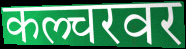
कल्चरवर